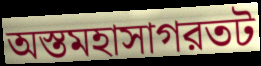
অস্তমহাসাগরতট